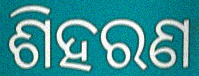
ଶିହରଣ